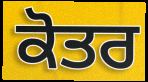
ਕੋਤਰ